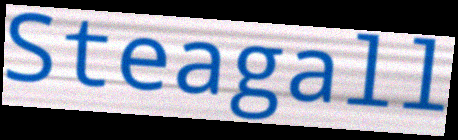
Steagall